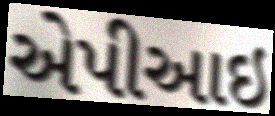
એપીઆઇ